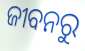
ଜୀବନରୁ